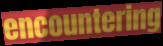
encountering